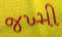
જખ્મી